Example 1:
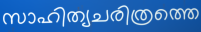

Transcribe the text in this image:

സാഹിത്യചരിത്രത്തെ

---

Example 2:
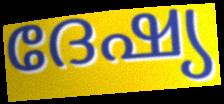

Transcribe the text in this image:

ദേഷ്യ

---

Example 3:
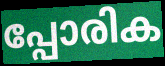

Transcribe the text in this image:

പ്പോരിക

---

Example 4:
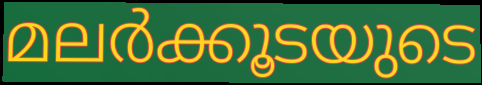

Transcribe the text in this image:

മലർക്കൂടയുടെ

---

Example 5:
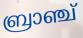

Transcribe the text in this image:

ബ്രാഞ്ച്